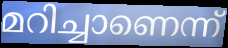
മറിച്ചാണെന്ന്